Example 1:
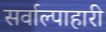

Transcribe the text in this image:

सर्वाल्पाहारी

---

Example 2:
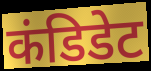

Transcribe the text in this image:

कंडिडेट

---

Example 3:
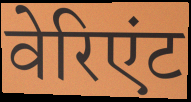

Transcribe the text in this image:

वेरिएंट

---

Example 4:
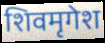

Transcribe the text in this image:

शिवमृगेश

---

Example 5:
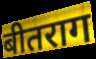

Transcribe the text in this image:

बीतराग